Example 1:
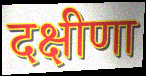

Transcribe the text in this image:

दक्षीणा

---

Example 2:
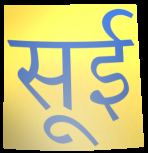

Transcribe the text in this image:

सूई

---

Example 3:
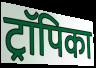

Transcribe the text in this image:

ट्रॉपिका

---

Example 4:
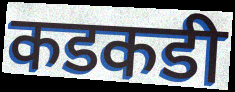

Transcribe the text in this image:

कडकडी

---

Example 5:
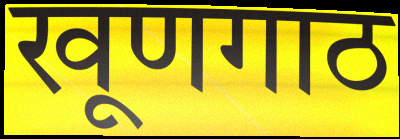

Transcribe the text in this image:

खूणगाठ